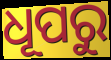
ଧୂପରୁ